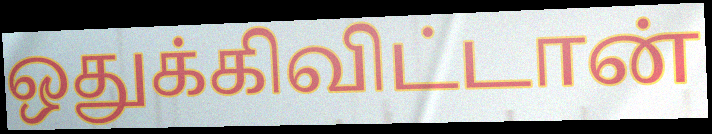
ஒதுக்கிவிட்டான்